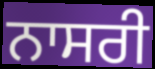
ਨਾਸਰੀ